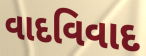
વાદવિવાદ